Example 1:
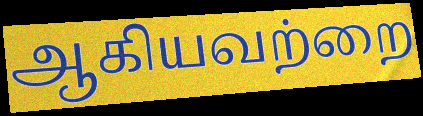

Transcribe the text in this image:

ஆகியவற்றை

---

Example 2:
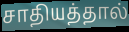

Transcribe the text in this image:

சாதியத்தால்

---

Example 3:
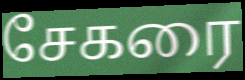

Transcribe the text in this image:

சேகரை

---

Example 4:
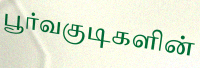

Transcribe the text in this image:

பூர்வகுடிகளின்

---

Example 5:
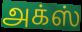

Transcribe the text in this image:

அக்ஸ்